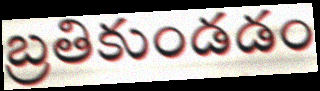
బ్రతికుండడం